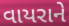
વાયરાને